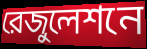
রেজুলেশনে